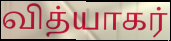
வித்யாகர்